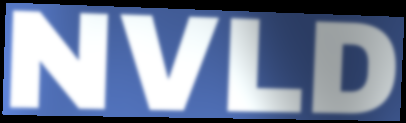
NVLD